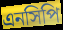
এনসিপি